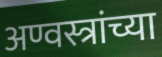
अण्वस्त्रांच्या